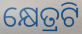
କ୍ଷେତ୍ରଟି